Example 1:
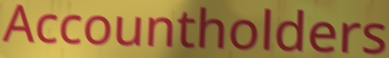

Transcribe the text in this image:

Accountholders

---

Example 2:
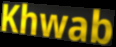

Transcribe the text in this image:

Khwab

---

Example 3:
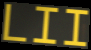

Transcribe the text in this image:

LII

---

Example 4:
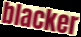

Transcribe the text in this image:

blacker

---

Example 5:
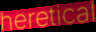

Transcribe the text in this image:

heretical